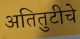
अतितुटीचे